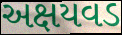
અક્ષયવડ